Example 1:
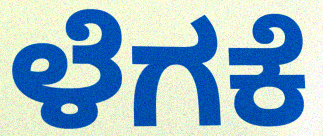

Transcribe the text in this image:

ಳೆಗಕೆ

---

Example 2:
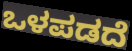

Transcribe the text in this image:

ಒಳಪಡದೆ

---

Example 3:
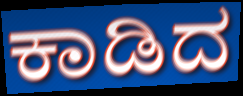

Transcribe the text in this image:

ಕಾಡಿದ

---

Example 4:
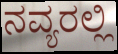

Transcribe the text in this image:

ನವ್ಯರಲ್ಲಿ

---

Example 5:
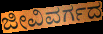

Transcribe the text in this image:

ಜೀವಿವರ್ಗದ